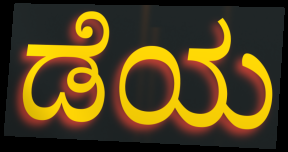
ಡೆಯ